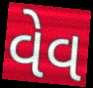
વેવ